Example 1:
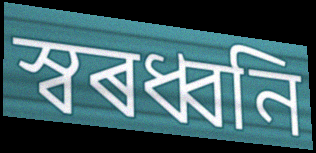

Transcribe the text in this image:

স্বৰধ্বনি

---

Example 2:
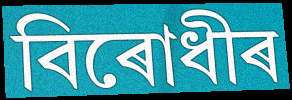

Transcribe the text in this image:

বিৰোধীৰ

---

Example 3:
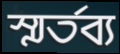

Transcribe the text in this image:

স্মৰ্তব্য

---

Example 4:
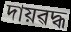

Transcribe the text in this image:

দায়ৱদ্ধ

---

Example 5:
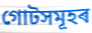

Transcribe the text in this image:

গোটসমূহৰ